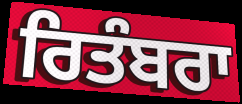
ਰਿਤੰਬਰਾ